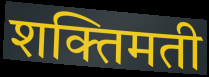
शक्तिमती